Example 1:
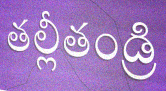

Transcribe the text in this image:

తల్లీతండ్రి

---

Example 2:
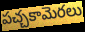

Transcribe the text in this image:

పచ్చకామెరలు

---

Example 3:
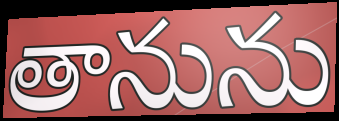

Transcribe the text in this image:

తానును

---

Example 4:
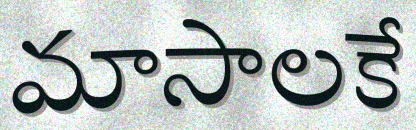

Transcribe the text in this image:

మాసాలకే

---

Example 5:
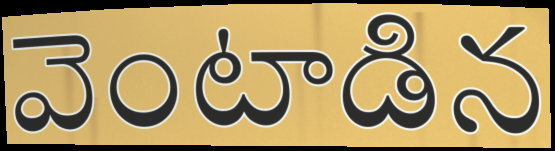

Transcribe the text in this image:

వెంటాడిన